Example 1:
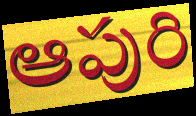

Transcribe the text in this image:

ఆపురి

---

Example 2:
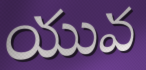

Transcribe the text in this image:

యువ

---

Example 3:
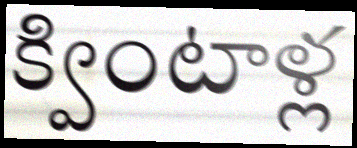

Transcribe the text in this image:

క్వింటాళ్ల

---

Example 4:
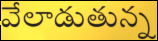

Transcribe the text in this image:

వేలాడుతున్న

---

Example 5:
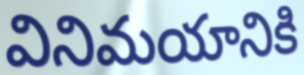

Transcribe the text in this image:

వినిమయానికి